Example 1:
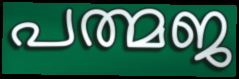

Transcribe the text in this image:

പത്മജ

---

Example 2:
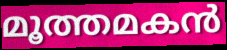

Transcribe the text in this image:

മൂത്തമകൻ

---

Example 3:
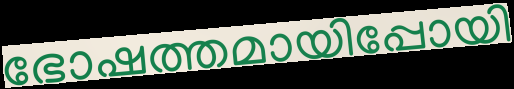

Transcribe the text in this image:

ഭോഷത്തമായിപ്പോയി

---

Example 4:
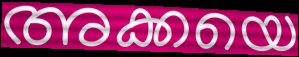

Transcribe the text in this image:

അക്കയെ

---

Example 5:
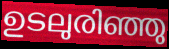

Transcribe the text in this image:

ഉടലുരിഞ്ഞു